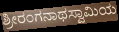
ಶ್ರೀರಂಗನಾಥಸ್ವಾಮಿಯ